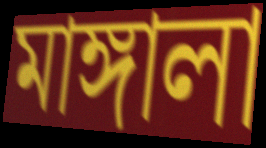
মাঙ্গালা